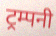
ट्रम्पनी